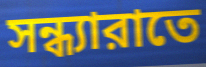
সন্ধ্যারাতে